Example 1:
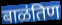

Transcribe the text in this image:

बाळंतिण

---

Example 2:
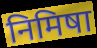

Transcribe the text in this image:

निमिषा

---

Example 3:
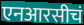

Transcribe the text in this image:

एनआरसीचं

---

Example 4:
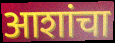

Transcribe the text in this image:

आशांचा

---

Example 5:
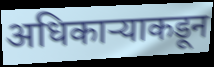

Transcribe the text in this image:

अधिकाऱ्याकडून